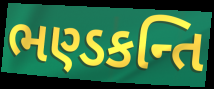
ભણ્ડકન્તિ